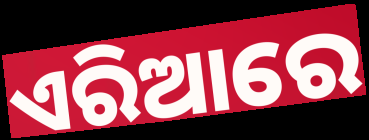
ଏରିଆରେ